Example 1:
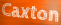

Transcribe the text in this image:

Caxton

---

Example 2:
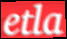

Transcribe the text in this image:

etla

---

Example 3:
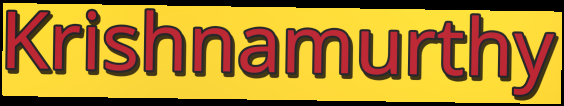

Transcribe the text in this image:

Krishnamurthy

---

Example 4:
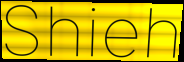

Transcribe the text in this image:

Shieh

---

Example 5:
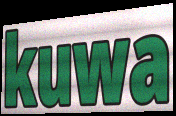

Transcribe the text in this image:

kuwa